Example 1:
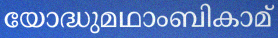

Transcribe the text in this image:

യോദ്ധുമഥാംബികാമ്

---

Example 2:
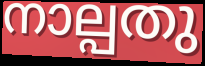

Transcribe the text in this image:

നാല്പതു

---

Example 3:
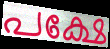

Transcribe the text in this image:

പക്ഷേ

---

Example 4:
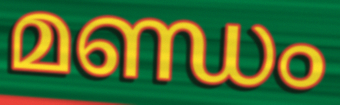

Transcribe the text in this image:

മണ്ഡം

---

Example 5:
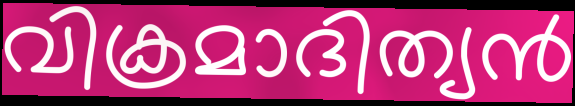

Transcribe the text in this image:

വിക്രമാദിത്യൻ